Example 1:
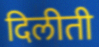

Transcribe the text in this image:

दिलीती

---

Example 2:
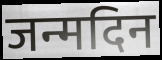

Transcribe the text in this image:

जन्मदिन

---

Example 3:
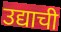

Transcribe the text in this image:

उद्याची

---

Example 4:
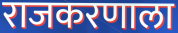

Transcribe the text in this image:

राजकरणाला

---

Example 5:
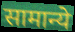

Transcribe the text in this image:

सामान्ये